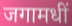
जगामधीं